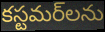
కస్టమర్‌లను